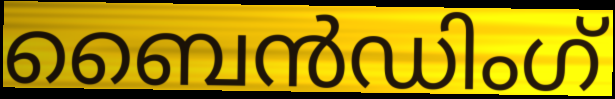
ബൈൻഡിംഗ്